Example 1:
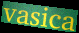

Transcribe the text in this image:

vasica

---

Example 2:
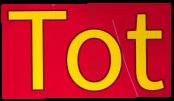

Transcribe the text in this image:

Tot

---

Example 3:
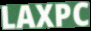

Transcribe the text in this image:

LAXPC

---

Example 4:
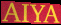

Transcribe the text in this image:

AIYA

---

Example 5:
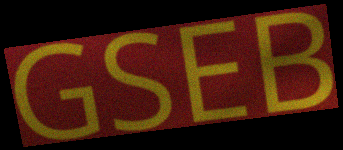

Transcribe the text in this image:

GSEB